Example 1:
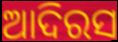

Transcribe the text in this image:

ଆଦିରସ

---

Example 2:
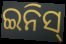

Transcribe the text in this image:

ଇନିସ୍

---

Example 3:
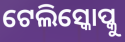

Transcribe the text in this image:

ଟେଲିସ୍କୋପ୍କୁ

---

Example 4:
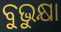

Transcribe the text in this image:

ବୁଭୁକ୍ଷା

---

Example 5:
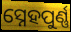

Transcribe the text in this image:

ସ୍ନେହପୁର୍ଣ୍ଣ